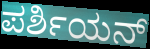
ಪರ್ಶಿಯನ್